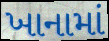
ખાનામાં